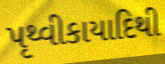
પૃથ્વીકાયાદિથી